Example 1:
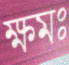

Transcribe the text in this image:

ক্ষমঃ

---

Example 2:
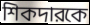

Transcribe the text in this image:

শিকদারকে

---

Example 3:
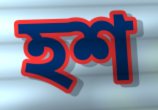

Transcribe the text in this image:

হশ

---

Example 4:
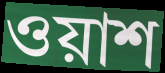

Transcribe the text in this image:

ওয়াশ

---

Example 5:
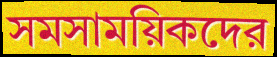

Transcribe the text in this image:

সমসাময়িকদের